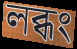
লব্ধং